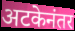
अटकेनंतर